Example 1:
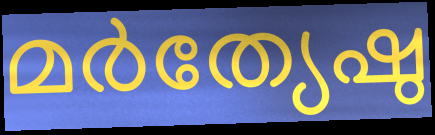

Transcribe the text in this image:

മർത്യേഷു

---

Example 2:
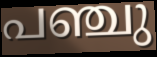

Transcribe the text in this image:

പഞ്ചു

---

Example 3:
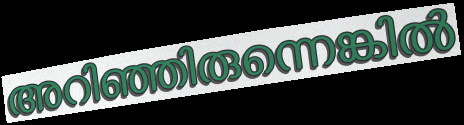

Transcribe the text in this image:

അറിഞ്ഞിരുന്നെങ്കിൽ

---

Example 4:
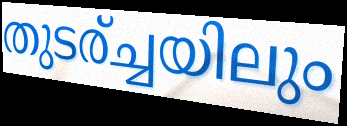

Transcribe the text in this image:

തുടര്ച്ചയിലും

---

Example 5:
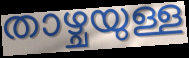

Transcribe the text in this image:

താഴ്ചയുള്ള